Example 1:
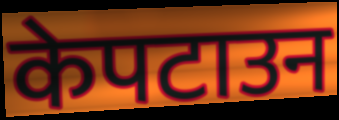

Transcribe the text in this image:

केपटाउन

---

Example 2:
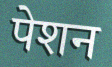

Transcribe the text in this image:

पेशन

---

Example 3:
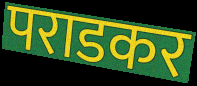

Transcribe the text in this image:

पराडकर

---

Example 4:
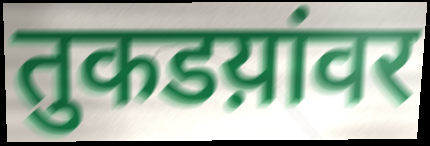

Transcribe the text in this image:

तुकडय़ांवर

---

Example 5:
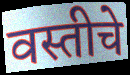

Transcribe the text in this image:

वस्तीचे